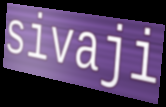
sivaji